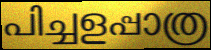
പിച്ചളപ്പാത്ര